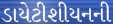
ડાયેટીશીયનની